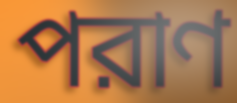
পরাণ